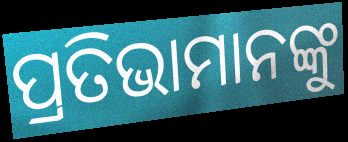
ପ୍ରତିଭାମାନଙ୍କୁ